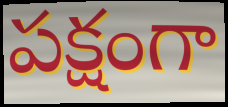
పక్షంగా